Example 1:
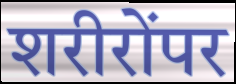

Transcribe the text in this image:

शरीरोंपर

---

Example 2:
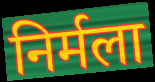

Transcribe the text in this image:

निर्मला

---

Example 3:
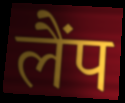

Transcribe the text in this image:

लैंप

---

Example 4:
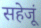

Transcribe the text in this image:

सहेजूं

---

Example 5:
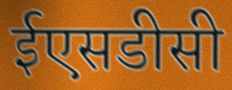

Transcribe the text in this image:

ईएसडीसी